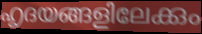
ഹൃദയങ്ങളിലേക്കും